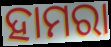
ହାମରା